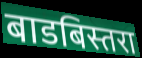
बाडबिस्तरा